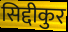
सिद्दीकुर